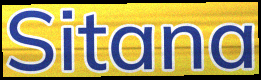
Sitana